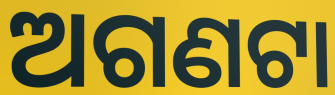
ଅଗଣଟା